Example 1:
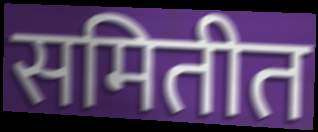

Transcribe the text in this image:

समितीत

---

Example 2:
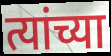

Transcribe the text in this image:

त्यांच्या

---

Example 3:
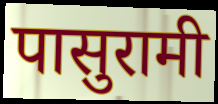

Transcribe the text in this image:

पासुरामी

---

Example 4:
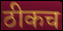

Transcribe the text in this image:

ठीकच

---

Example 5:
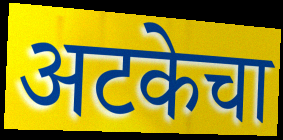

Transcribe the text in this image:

अटकेचा